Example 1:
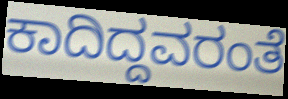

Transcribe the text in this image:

ಕಾದಿದ್ದವರಂತೆ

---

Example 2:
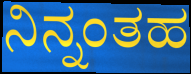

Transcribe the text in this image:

ನಿನ್ನಂತಹ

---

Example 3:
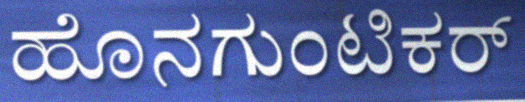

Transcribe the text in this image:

ಹೊನಗುಂಟಿಕರ್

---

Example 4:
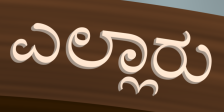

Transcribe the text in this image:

ಎಲ್ಲಾರು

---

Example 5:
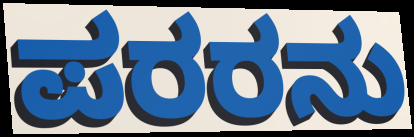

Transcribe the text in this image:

ಪರರನು